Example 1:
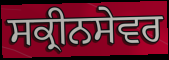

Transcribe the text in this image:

ਸਕ੍ਰੀਨਸੇਵਰ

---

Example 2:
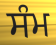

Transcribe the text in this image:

ਸੰਮ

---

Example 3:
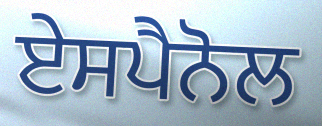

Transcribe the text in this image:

ਏਸਪੈਨੋਲ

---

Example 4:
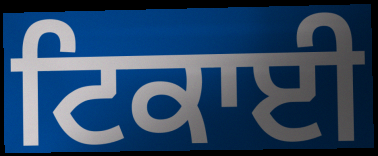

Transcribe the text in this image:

ਟਿਕਾਈ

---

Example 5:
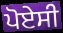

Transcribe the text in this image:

ਪੋਏਸੀ